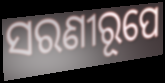
ସରଣୀରୂପେ